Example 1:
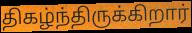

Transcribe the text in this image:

திகழ்ந்திருக்கிறார்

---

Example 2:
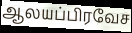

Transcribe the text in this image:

ஆலயப்பிரவேச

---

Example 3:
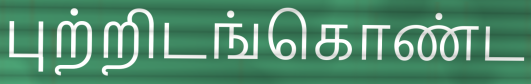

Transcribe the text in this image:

புற்றிடங்கொண்ட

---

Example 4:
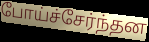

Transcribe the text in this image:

போய்ச்சேர்ந்தன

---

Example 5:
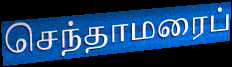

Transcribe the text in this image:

செந்தாமரைப்